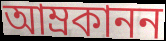
আম্রকানন